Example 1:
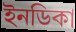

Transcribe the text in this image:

ইনডিকা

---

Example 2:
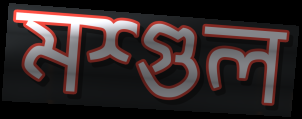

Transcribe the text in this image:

মশ্গুল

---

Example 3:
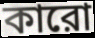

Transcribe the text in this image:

কারো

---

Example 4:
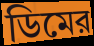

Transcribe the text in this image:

ডিমের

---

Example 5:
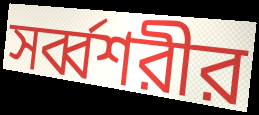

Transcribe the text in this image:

সর্ব্বশরীর